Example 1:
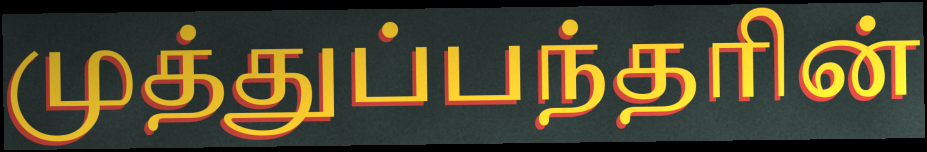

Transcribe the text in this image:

முத்துப்பந்தரின்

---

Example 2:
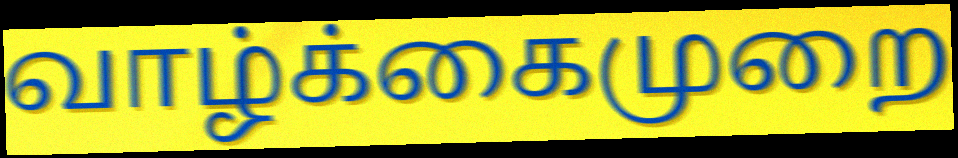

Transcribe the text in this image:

வாழ்க்கைமுறை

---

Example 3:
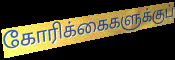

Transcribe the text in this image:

கோரிக்கைகளுக்குப்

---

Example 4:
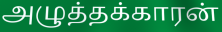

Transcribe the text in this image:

அழுத்தக்காரன்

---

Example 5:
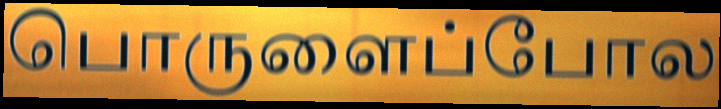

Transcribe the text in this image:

பொருளைப்போல